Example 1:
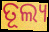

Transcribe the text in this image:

ତୂଲ୍ୟ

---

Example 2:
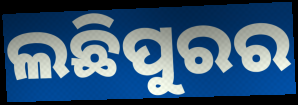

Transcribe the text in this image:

ଲଛିପୁରର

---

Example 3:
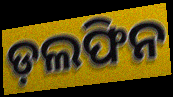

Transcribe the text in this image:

ଡ଼ଲଫିନ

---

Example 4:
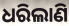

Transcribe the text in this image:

ଧରିଲାଣି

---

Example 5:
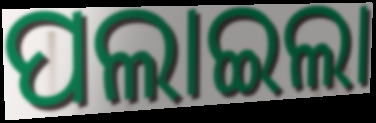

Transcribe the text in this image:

ପଲାଇଲା